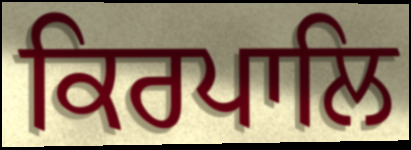
ਕਿਰਪਾਲਿ